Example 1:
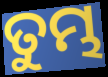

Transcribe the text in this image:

ତୁମ୍ଭ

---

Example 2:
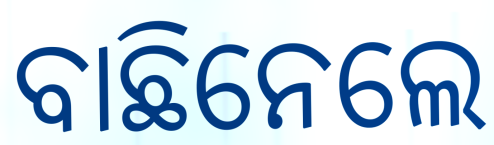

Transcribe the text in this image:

ବାଛିନେଲେ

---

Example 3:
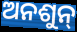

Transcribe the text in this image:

ଅନଶୁନ୍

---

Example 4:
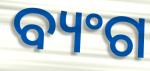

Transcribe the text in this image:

ବ୍ୟଂଗ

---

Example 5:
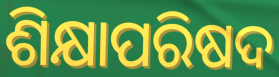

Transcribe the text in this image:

ଶିକ୍ଷାପରିଷଦ